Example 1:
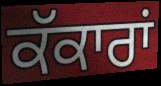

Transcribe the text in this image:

ਕੱਕਾਰਾਂ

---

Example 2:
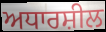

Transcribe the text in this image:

ਅਧਾਰਸ਼ੀਲ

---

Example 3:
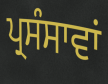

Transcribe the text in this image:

ਪ੍ਰਸੰਸਾਵਾਂ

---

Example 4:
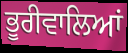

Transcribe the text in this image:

ਭੂਰੀਵਾਲਿਆਂ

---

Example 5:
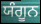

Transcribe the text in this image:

ਯੰਗੂਨ